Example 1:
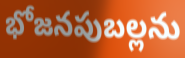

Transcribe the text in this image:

భోజనపుబల్లను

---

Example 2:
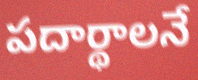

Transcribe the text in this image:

పదార్థాలనే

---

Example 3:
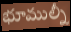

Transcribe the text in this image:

భూముల్నీ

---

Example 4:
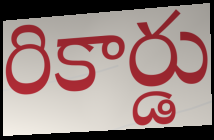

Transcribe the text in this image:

రికార్డు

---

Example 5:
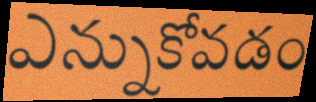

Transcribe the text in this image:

ఎన్నుకోవడం